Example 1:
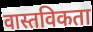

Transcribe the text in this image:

वास्तविकता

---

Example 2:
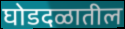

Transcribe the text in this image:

घोडदळातील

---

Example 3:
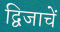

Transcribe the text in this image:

द्विजाचें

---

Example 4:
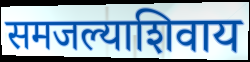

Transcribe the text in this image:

समजल्याशिवाय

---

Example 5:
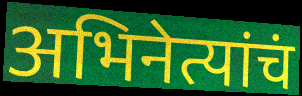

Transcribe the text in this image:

अभिनेत्यांचं